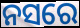
ନସରେ